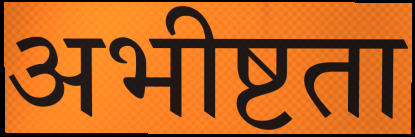
अभीष्टता